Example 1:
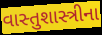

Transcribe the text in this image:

વાસ્તુશાસ્ત્રીના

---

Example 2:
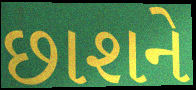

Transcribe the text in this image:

છાશને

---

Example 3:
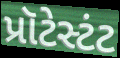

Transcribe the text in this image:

પ્રૉટેસ્ટંટ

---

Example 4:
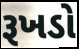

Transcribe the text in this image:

રૂખડો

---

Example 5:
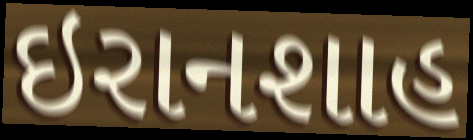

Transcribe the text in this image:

ઇરાનશાહ